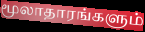
மூலாதாரங்களும்